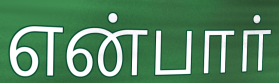
என்பார்